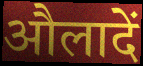
औलादें